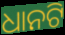
ଧାନଟି